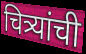
चित्र्यांची